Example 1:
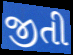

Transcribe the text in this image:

જીતી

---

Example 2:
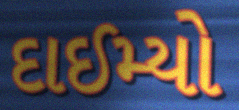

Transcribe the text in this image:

દાઈમ્યો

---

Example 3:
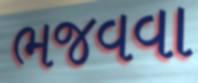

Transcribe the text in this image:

ભજવવા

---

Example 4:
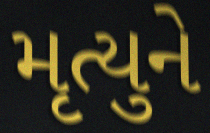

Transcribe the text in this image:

મૃત્યુને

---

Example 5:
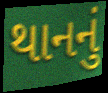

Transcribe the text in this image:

થાનનું